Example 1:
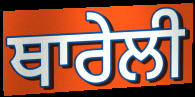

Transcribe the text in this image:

ਥਾਰੇਲੀ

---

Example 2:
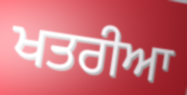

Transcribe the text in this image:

ਖਤਰੀਆ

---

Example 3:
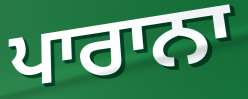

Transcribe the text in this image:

ਪਾਰਾਨਾ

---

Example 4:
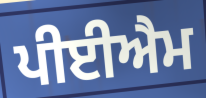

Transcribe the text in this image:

ਪੀਈਐਮ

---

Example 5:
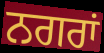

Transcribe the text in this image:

ਨਗਰਾਂ